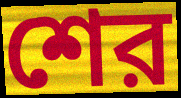
শের